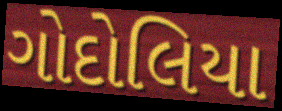
ગોદોલિયા